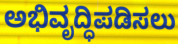
ಅಭಿವೃದ್ಧಿಪಡಿಸಲು